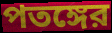
পতঙ্গের